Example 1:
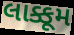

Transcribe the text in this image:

લાક્કૂમ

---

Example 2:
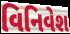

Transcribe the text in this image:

વિનિવેશ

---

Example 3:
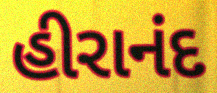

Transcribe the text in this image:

હીરાનંદ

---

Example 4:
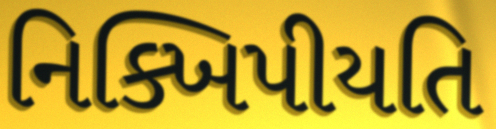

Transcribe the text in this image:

નિક્ખિપીયતિ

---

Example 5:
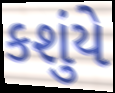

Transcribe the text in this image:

કશુંયે